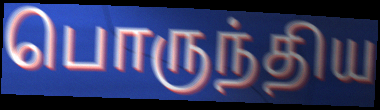
பொருந்திய